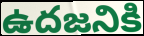
ఉదజనికి